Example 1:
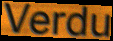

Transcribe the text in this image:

Verdu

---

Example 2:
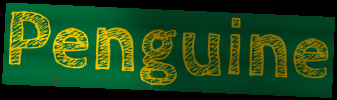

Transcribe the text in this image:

Penguine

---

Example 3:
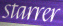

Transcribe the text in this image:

starrer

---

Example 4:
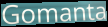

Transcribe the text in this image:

Gomanta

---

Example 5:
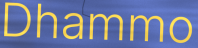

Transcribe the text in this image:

Dhammo